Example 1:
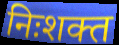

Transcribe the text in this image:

निःशक्त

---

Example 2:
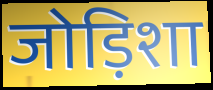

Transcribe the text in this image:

जोड़िशा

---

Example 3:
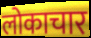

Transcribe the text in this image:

लोकाचार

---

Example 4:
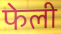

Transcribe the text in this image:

फेली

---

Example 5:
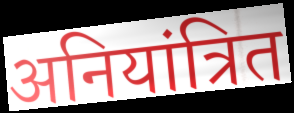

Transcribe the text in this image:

अनियांत्रित